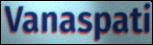
Vanaspati